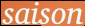
saison